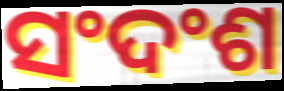
ସଂଦଂଶ